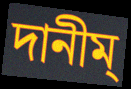
দানীম্